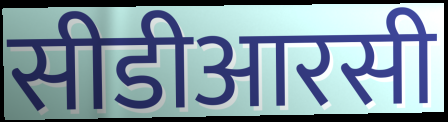
सीडीआरसी